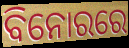
ବିନୋରରେ